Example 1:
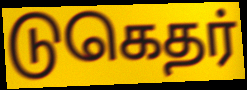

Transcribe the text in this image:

டுகெதர்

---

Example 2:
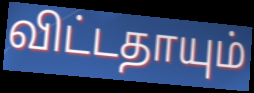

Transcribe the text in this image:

விட்டதாயும்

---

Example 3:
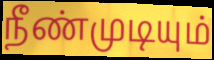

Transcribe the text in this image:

நீண்முடியும்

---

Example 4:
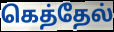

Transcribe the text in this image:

கெத்தேல்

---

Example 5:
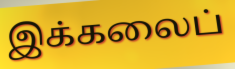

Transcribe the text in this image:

இக்கலைப்